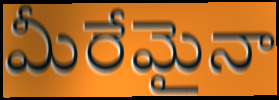
మీరేమైనా